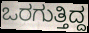
ಒರಗುತ್ತಿದ್ದ